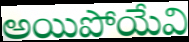
అయిపోయేవి